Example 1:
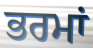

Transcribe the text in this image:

ਭਰਮਾਂ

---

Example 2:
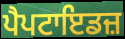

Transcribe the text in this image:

ਪੈਪਟਾਇਡਜ਼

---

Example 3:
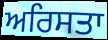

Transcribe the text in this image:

ਅਰਿਸਤਾ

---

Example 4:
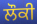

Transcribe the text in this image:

ਲੌਕੀ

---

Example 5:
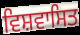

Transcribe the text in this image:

ਵਿਸ਼ਵਾਸਿਤ